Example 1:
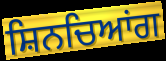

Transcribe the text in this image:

ਸ਼ਿਨਚਿਆਂਗ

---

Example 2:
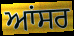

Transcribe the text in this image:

ਆਂਸਰ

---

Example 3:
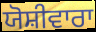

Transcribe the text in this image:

ਯੋਸ਼ੀਵਾਰਾ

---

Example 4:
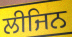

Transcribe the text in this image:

ਲੀਜਿਨ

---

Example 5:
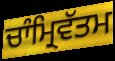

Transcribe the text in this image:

ਚਾੰਮ੍ਰਿਵੱਤਮ